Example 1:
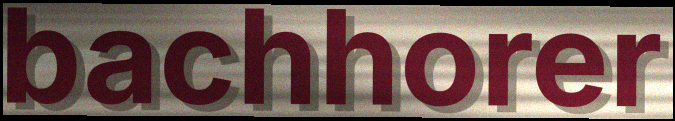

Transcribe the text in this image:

bachhorer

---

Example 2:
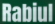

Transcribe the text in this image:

Rabiul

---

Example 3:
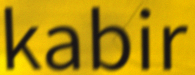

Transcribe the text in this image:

kabir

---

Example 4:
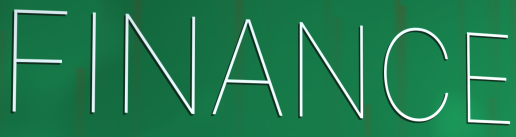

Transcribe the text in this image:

FINANCE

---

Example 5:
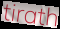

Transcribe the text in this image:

tirath